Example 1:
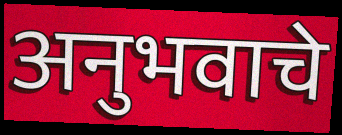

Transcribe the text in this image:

अनुभवाचे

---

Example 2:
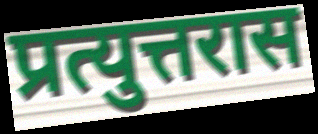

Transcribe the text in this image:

प्रत्युत्तरास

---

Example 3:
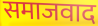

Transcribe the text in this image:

समाजवाद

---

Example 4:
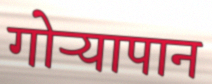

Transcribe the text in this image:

गोऱ्यापान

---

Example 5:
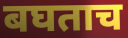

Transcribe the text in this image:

बघताच